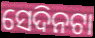
ସେଦିନଟା